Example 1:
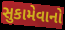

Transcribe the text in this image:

સુકામેવાનો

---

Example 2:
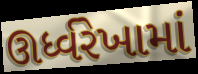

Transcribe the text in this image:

ઊર્ધ્વરેખામાં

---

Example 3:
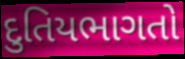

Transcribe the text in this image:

દુતિયભાગતો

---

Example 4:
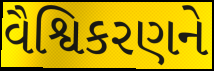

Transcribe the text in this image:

વૈશ્વિકરણને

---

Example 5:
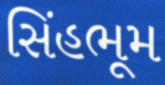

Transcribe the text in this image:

સિંહભૂમ